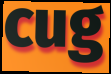
cug